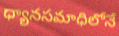
ధ్యానసమాధిలోనే